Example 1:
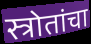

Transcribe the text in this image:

स्त्रोतांचा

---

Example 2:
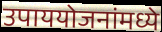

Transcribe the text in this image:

उपाययोजनांमध्ये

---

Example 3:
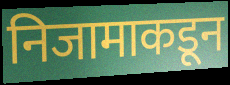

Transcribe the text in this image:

निजामाकडून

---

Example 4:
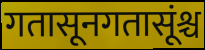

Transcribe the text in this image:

गतासूनगतासूंश्च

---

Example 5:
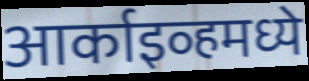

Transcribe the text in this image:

आर्काइव्हमध्ये